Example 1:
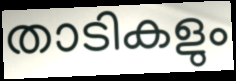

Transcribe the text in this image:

താടികളും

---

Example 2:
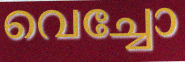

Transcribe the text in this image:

വെച്ചോ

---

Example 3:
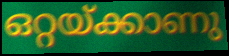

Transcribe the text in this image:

ഒറ്റയ്ക്കാണു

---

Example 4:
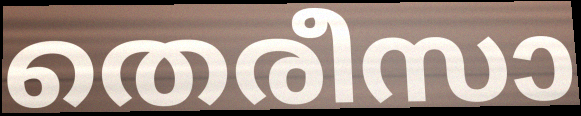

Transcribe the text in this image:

തെരീസാ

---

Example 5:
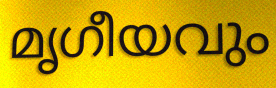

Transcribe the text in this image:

മൃഗീയവും